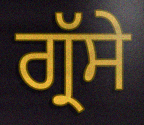
ਗ੍ਰੱਸੇ